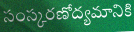
సంస్కరణోద్యమానికి